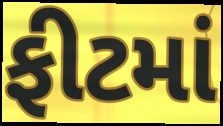
ફીટમાં